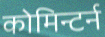
कोमिन्टर्न